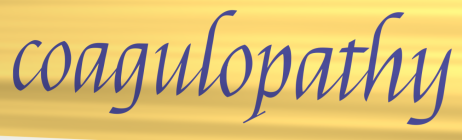
coagulopathy